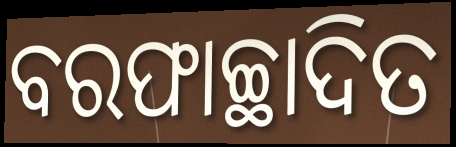
ବରଫାଚ୍ଛାଦିତ